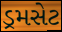
ડ્રમસેટ